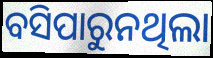
ବସିପାରୁନଥିଲା